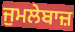
ਜੁਮਲੇਬਾਜ਼